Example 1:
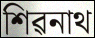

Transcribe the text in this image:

শিৱনাথ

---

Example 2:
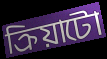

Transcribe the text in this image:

ক্ৰিয়াটো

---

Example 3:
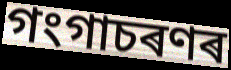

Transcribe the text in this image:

গংগাচৰণৰ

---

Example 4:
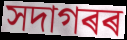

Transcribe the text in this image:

সদাগৰৰ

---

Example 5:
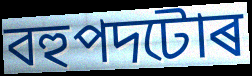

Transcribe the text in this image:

বহুপদটোৰ